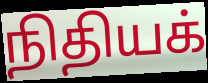
நிதியக்